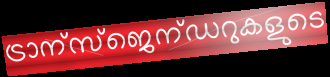
ട്രാന്സ്ജെന്ഡറുകളുടെ